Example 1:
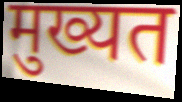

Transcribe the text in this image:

मुख्यत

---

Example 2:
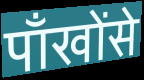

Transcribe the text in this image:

पाँखोंसे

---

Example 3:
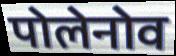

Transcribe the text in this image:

पोलेनोव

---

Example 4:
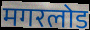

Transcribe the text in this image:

मगरलोड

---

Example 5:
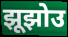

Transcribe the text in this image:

झूझोउ